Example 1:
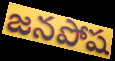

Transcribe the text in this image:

జనపోష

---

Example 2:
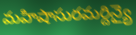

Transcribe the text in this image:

మహిషాసురమర్దిన్యై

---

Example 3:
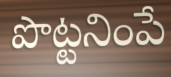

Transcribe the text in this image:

పొట్టనింపే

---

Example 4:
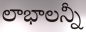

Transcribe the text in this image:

లాభాలన్నీ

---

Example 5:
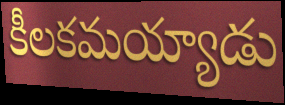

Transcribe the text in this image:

కీలకమయ్యాడు